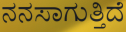
ನನಸಾಗುತ್ತಿದೆ